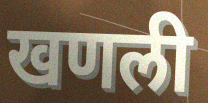
खणली